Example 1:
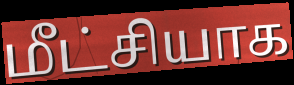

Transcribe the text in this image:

மீட்சியாக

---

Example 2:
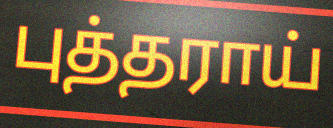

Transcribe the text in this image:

புத்தராய்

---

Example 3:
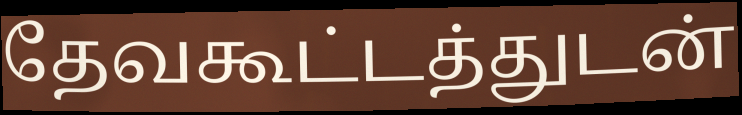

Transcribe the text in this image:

தேவகூட்டத்துடன்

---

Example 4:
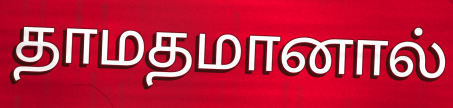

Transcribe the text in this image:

தாமதமானால்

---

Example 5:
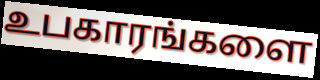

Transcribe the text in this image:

உபகாரங்களை